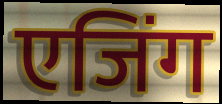
एजिंग